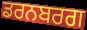
ਡਰਨਬਰਗ